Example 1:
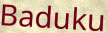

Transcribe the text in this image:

Baduku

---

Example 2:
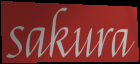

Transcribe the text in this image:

sakura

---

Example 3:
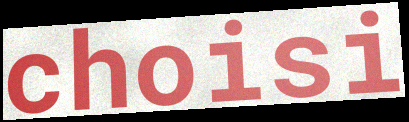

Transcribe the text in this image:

choisi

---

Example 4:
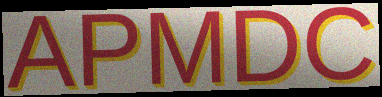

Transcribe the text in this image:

APMDC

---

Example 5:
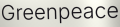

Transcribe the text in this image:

Greenpeace